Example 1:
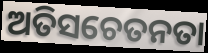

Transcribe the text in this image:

ଅତିସଚେତନତା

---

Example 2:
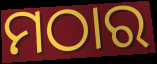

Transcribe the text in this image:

ମଠାର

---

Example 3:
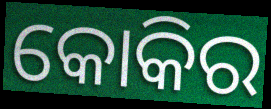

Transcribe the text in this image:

କୋକିର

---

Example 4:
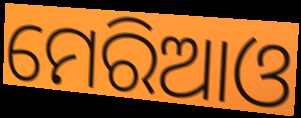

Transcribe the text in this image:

ମେରିଆଓ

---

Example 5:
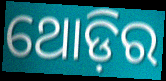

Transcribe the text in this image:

ଥୋଡ଼ିର